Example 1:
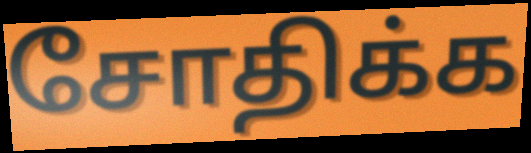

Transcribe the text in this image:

சோதிக்க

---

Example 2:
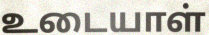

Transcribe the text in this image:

உடையாள்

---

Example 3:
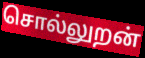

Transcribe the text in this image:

சொல்லுறன்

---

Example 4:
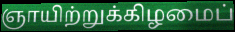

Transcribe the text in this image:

ஞாயிற்றுக்கிழமைப்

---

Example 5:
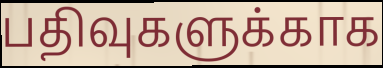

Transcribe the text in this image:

பதிவுகளுக்காக